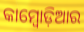
କାମ୍ବୋଡ଼ିଆର